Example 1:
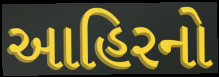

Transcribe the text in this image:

આહિરનો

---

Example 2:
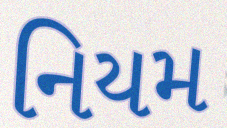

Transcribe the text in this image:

નિયમ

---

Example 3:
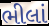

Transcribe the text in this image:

ભીલાં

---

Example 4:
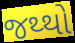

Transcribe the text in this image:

જથ્થો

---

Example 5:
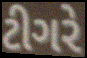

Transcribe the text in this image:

ટીગરે